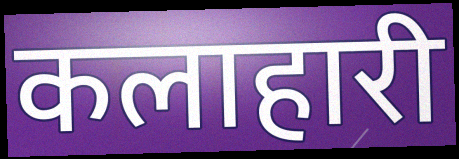
कलाहारी